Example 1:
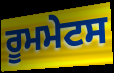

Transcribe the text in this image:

ਰੂਮਮੇਟਸ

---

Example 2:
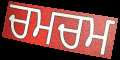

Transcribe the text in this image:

ਚਮਚਮ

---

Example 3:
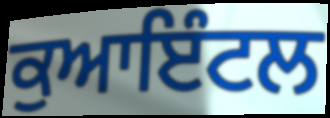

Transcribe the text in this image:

ਕੁਆਇੰਟਲ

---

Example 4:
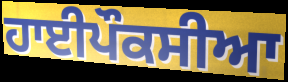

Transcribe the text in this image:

ਹਾਈਪੌਕਸੀਆ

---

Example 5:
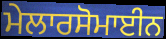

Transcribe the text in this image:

ਮੇਲਾਰਸੋਮਾਈਨ